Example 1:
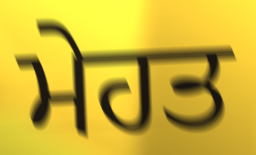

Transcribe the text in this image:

ਮੇਹਤ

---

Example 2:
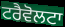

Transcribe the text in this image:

ਟਰੈਵੋਲਟਾ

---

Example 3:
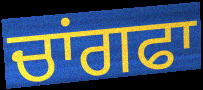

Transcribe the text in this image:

ਚਾਂਗਫਾ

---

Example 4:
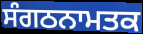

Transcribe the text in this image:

ਸੰਗਠਨਾਮਤਕ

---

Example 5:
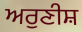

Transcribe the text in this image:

ਅਰੁਣੀਸ਼